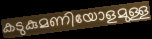
കടുകുമണിയോളമുള്ള